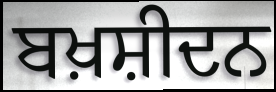
ਬਖ਼ਸ਼ੀਦਨ